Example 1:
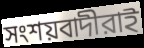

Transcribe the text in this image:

সংশয়বাদীরাই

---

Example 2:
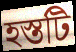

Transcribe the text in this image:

হস্তটি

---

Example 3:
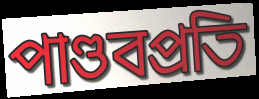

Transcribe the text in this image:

পাণ্ডবপ্রতি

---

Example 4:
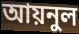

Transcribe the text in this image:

আয়নুল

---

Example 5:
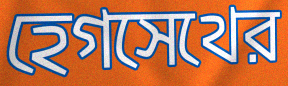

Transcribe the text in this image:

হেগসেথের